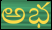
అభ